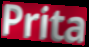
Prita